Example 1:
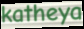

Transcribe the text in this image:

katheya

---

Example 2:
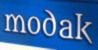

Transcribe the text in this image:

modak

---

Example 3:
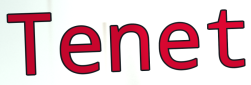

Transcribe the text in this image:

Tenet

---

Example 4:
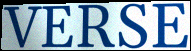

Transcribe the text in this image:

VERSE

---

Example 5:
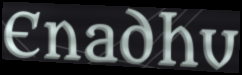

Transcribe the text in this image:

Enadhu